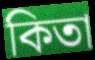
কিতা